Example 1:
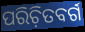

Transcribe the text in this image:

ପରିଚ଼ିତବର୍ଗ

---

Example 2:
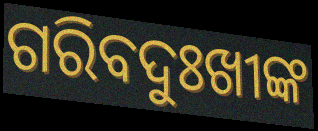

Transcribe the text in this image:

ଗରିବଦୁଃଖୀଙ୍କ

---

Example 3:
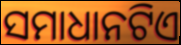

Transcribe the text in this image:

ସମାଧାନଟିଏ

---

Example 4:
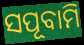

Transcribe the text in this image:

ସପୂବାମି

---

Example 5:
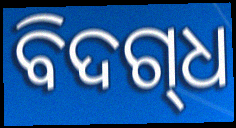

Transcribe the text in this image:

ବିଦଗ୍‍ଧ